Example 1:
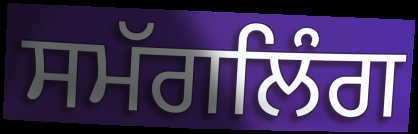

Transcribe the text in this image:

ਸਮੱਗਲਿੰਗ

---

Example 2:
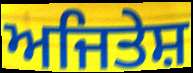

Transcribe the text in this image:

ਅਜਿਤੇਸ਼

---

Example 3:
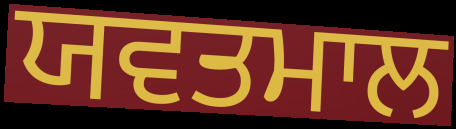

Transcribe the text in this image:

ਯਵਤਮਾਲ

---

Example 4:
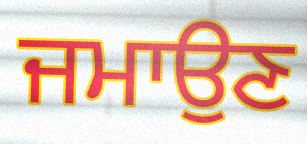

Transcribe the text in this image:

ਜਮਾਉਣ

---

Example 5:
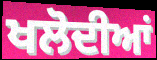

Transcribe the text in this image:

ਖਲੋਦੀਆਂ